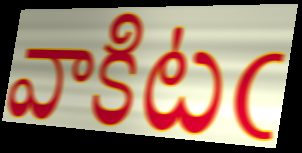
వాకిటఁ